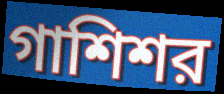
গাশিশর